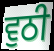
ਵੁਠੀ